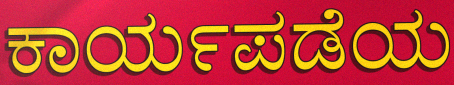
ಕಾರ್ಯಪಡೆಯ